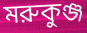
মরুকুঞ্জ